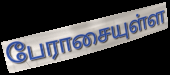
பேராசையுள்ள